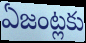
ఏజంట్లకు